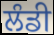
ਲੰਡੀ